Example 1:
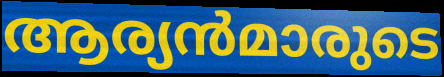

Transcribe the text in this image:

ആര്യൻമാരുടെ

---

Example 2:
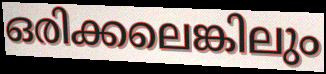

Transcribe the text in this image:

ഒരിക്കലെങ്കിലും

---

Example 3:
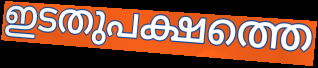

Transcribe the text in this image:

ഇടതുപക്ഷത്തെ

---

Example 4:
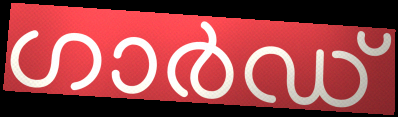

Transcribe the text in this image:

ഗാർഡ്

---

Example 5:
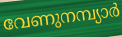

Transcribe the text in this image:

വേണുനമ്പ്യാർ